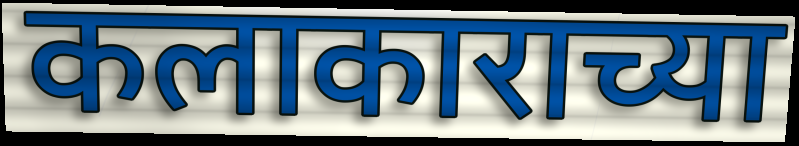
कलाकाराच्या